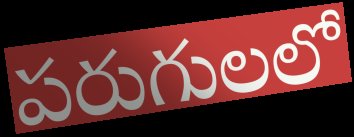
పరుగులలో